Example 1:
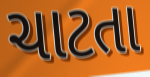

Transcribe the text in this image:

ચાટતા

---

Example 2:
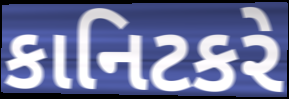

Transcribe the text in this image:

કાનિટકરે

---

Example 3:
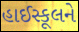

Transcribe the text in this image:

હાઈસ્કૂલને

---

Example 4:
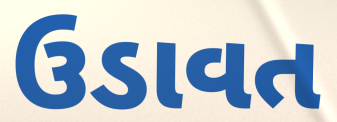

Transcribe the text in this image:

ઉડાવત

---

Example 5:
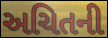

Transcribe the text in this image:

અચિતની